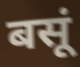
बसूं